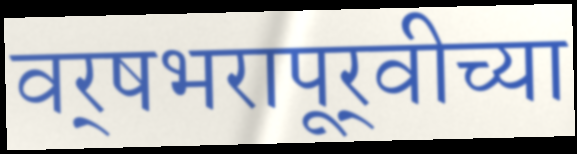
वर्षभरापूर्वीच्या